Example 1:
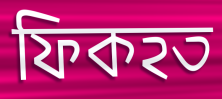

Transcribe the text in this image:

ফিকহত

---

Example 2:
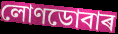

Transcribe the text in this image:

লোণডোবাৰ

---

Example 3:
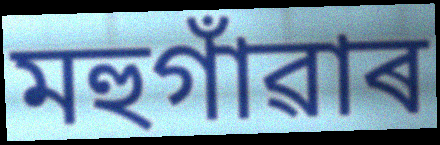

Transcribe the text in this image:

মহুগাঁৱাৰ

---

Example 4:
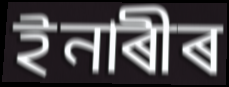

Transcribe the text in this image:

ইনাৰীৰ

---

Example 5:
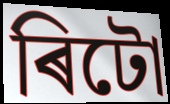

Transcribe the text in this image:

ৰিটো